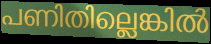
പണിതില്ലെങ്കിൽ